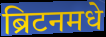
ब्रिटनमधे